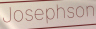
Josephson